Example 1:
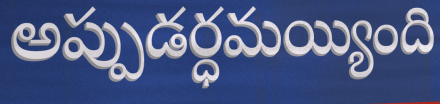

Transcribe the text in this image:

అప్పుడర్ధమయ్యింది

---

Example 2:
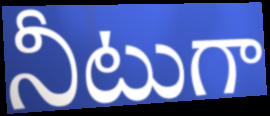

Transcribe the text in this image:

నీటుగా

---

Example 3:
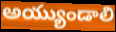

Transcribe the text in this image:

అయ్యుండాలి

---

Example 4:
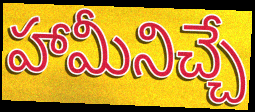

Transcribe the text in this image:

హామీనిచ్చే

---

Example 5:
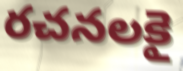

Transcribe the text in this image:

రచనలకై